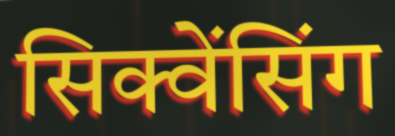
सिक्वेंसिंग